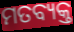
ମତବ୍ୟକ୍ତ